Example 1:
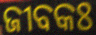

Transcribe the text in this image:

ଜୀବକଃ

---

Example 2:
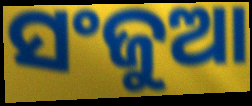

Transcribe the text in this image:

ସଂଜୁଆ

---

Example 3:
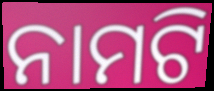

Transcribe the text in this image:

ନାମଟି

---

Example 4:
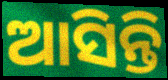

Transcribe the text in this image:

ଆସିନ୍ତି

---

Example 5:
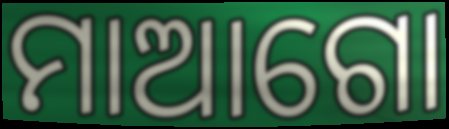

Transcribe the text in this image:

ମାଆଗୋ